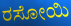
ರಸೋಯಿ